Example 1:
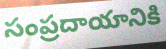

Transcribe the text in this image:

సంప్రదాయానికి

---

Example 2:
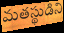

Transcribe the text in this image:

మతస్థుడిని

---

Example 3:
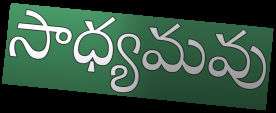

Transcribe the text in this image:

సాధ్యమవు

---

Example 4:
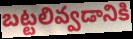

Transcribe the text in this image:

బట్టలివ్వడానికి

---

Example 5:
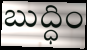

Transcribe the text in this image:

బుద్ధిం